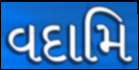
વદામિ